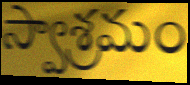
స్వాశ్రమం